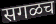
सगळच